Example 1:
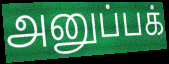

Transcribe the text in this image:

அனுப்பக்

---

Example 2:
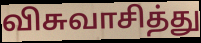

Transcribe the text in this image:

விசுவாசித்து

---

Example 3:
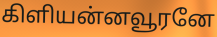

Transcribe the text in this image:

கிளியன்னவூரனே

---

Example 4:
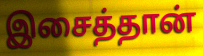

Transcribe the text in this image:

இசைத்தான்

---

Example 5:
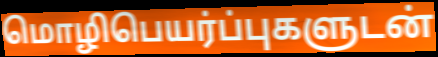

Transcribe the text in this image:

மொழிபெயர்ப்புகளுடன்